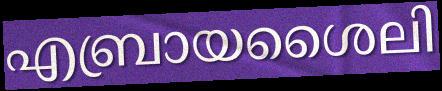
എബ്രായശൈലി